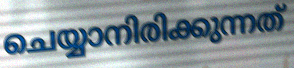
ചെയ്യാനിരിക്കുന്നത്